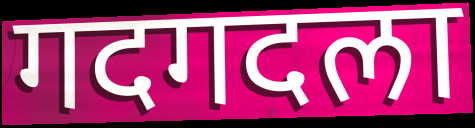
गदगदला